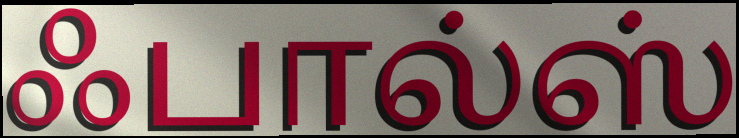
ஃபால்ஸ்